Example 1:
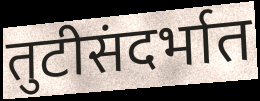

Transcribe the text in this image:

तुटीसंदर्भात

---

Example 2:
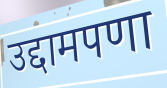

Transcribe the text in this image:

उद्दामपणा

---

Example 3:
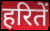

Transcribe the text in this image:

हरितें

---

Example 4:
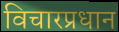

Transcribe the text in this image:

विचारप्रधान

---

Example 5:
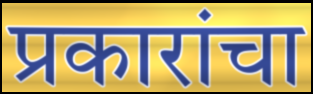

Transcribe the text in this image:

प्रकारांचा